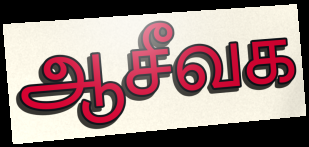
ஆசீவக